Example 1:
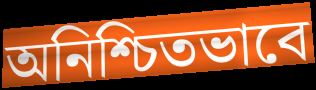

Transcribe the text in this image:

অনিশ্চিতভাবে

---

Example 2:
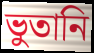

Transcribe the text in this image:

ভুতানি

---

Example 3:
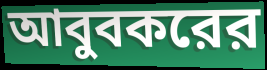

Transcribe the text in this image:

আবুবকরের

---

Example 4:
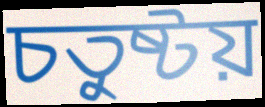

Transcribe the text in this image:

চতুষ্টয়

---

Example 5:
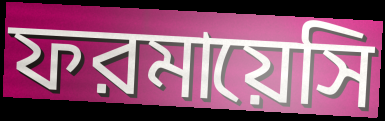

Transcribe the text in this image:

ফরমায়েসি